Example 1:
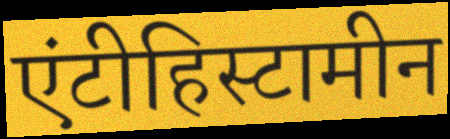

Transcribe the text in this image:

एंटीहिस्टामीन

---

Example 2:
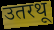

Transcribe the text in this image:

उतरथू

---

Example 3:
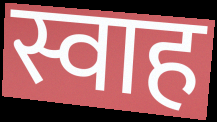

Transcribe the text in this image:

स्वाह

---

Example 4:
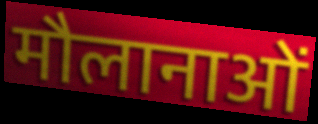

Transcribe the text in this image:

मौलानाओं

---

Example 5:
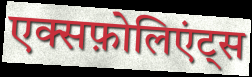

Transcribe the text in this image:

एक्सफ़ोलिएंट्स